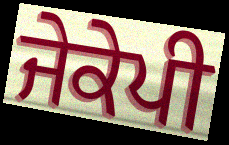
ਜੇਕੇਪੀ